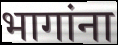
भागांना